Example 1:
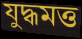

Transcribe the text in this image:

যুদ্ধমত্ত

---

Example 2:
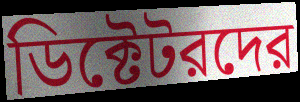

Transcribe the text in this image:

ডিক্টেটরদের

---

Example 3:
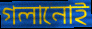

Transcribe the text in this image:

গলানোই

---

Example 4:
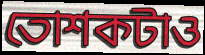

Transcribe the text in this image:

তোশকটাও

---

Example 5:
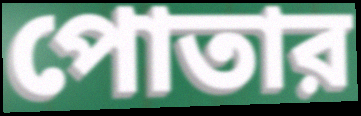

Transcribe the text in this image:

পোতার